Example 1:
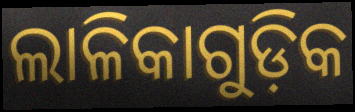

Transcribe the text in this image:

ଲାଳିକାଗୁଡ଼ିକ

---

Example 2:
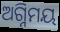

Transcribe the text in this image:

ଅଗ୍ନିମୟ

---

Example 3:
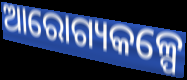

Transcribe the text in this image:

ଆରୋଗ୍ୟକଳ୍ପେ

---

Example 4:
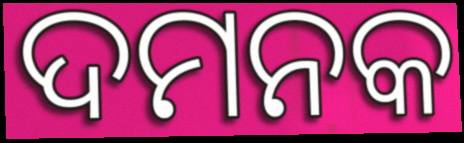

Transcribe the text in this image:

ଦମନକ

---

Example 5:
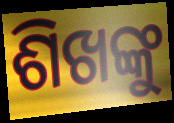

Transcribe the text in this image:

ଶିଖଙ୍କୁ